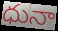
ధునా